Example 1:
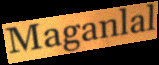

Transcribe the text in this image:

Maganlal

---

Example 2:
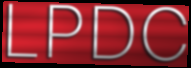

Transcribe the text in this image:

LPDC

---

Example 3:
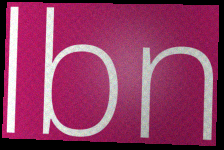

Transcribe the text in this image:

lbn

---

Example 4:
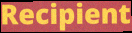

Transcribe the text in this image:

Recipient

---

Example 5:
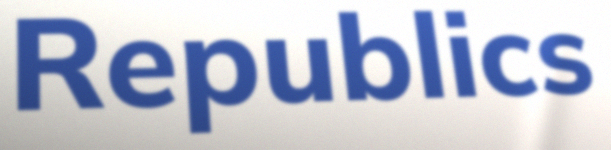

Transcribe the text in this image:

Republics